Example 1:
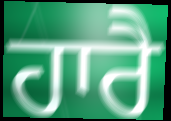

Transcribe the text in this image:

ਹਾਰੈ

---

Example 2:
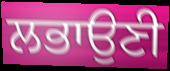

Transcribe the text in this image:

ਲਭਾਉਣੀ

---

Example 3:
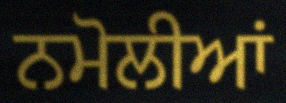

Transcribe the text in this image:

ਨਮੋਲੀਆਂ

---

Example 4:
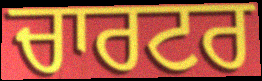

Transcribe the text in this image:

ਚਾਰਟਰ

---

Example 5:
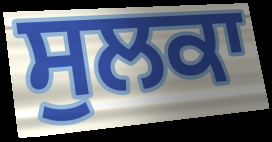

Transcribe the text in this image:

ਸੁਲਕਾ